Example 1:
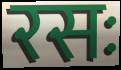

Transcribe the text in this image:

रसः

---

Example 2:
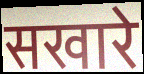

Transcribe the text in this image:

सखारे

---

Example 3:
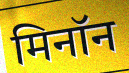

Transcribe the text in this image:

मिनॉन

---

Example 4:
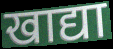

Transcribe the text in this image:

खाद्या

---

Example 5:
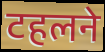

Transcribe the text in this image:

टहलने